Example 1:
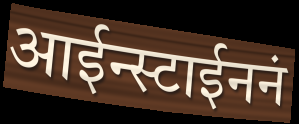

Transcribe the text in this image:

आईन्स्टाईननं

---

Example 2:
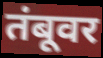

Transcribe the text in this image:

तंबूवर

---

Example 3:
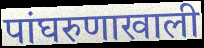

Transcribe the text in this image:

पांघरुणाखाली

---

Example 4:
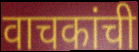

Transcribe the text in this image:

वाचकांची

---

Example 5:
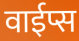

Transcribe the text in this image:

वाईप्स